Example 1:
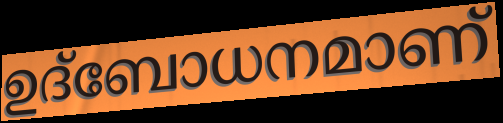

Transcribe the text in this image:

ഉദ്ബോധനമാണ്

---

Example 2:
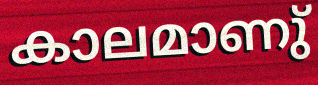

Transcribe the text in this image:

കാലമാണു്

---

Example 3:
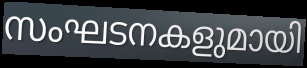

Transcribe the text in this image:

സംഘടനകളുമായി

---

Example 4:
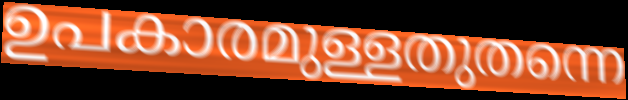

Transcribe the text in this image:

ഉപകാരമുള്ളതുതന്നെ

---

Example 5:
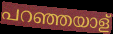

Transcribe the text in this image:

പറഞ്ഞയാള്